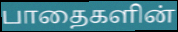
பாதைகளின்